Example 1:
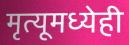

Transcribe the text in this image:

मृत्यूमध्येही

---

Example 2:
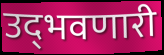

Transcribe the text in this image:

उद्भवणारी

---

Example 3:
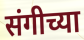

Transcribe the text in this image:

संगीच्या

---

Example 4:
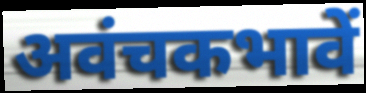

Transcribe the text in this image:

अवंचकभावें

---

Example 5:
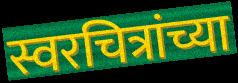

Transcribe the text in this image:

स्वरचित्रांच्या